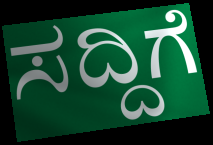
ಸದ್ದಿಗೆ